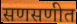
सणसणीत